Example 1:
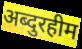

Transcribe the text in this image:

अब्दुरहीम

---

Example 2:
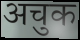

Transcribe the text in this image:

अचुक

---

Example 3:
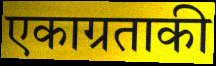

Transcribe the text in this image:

एकाग्रताकी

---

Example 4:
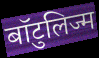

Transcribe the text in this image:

बॉटुलिज्म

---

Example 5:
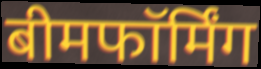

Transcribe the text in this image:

बीमफॉर्मिंग